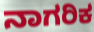
ನಾಗರಿಕ